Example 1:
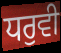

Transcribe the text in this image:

ਧਰੁਵੀ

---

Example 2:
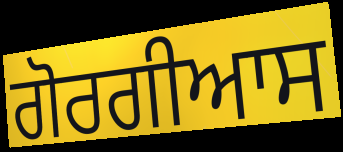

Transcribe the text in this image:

ਗੋਰਗੀਆਸ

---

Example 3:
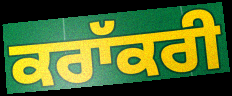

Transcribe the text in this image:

ਕਰਾੱਕਰੀ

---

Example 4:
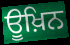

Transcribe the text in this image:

ਊਖ਼ਿਨ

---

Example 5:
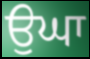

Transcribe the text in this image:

ਉਘਾ